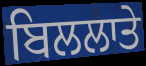
ਬਿਲਲਾਤੇ